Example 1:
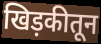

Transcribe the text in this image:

खिड़कीतून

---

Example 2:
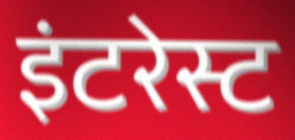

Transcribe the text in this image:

इंटरेस्ट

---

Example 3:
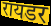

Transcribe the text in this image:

रायडर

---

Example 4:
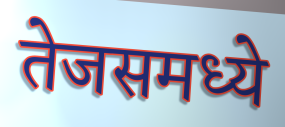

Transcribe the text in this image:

तेजसमध्ये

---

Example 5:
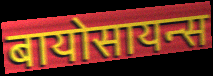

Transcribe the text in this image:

बायोसायन्स